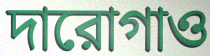
দারোগাও